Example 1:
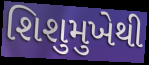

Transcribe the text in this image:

શિશુમુખેથી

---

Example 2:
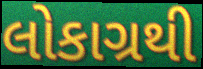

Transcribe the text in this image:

લોકાગ્રથી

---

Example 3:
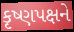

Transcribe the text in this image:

કૃષ્ણપક્ષને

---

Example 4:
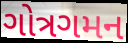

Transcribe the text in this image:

ગોત્રગમન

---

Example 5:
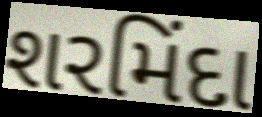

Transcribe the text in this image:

શરમિંદા